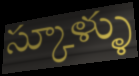
స్కూళ్ళు